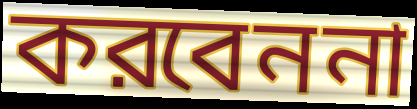
করবেননা